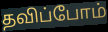
தவிப்போம்